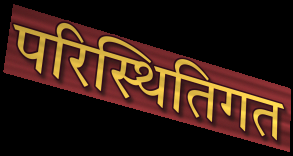
परिस्थितिगत